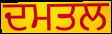
ਦਮਤਲ